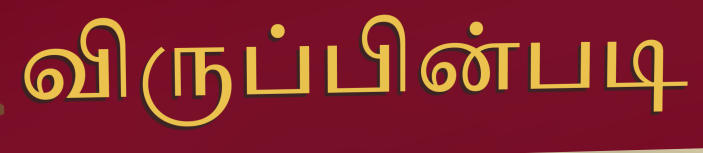
விருப்பின்படி